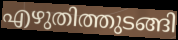
എഴുതിത്തുടങ്ങി